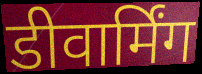
डीवार्मिंग